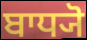
ਬਾਧ੍ਯੋ